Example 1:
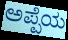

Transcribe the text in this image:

ಅಪ್ಪೆಯ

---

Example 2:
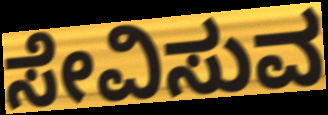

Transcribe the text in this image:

ಸೇವಿಸುವ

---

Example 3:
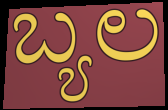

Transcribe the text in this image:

ಬ್ಯಲ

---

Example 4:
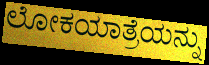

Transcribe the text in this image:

ಲೋಕಯಾತ್ರೆಯನ್ನು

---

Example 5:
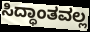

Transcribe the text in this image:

ಸಿದ್ಧಾಂತವಲ್ಲ